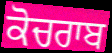
ਕੋਚਰਾਬ